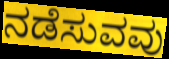
ನಡೆಸುವವು